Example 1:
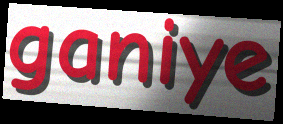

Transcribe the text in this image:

ganiye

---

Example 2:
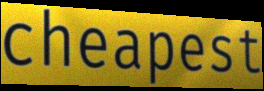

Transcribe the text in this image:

cheapest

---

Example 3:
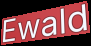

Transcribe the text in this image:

Ewald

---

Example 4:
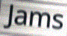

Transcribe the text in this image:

Jams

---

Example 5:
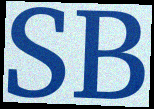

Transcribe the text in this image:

SB